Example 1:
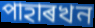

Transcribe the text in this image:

পাহাৰখন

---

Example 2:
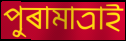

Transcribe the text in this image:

পুৰামাত্ৰাই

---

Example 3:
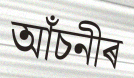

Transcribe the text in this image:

আঁচনীৰ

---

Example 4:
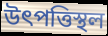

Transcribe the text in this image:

উৎপত্তিস্থল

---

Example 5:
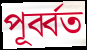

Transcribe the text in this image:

পূৰ্ব্বত